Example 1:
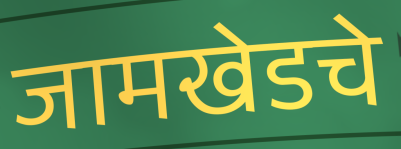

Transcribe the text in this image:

जामखेडचे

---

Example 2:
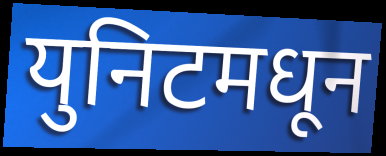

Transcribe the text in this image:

युनिटमधून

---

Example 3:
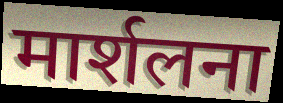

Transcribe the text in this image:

मार्शलना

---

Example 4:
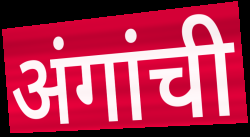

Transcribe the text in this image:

अंगांची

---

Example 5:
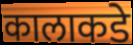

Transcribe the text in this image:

कालाकडे